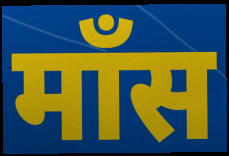
माँस